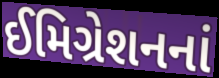
ઈમિગ્રેશનનાં